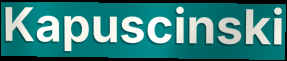
Kapuscinski